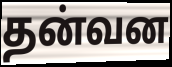
தன்வன